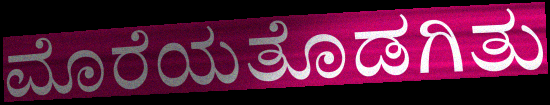
ಮೊರೆಯತೊಡಗಿತು